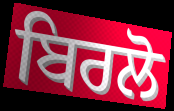
ਬਿਰਲੋ